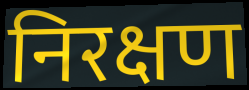
निरक्षण